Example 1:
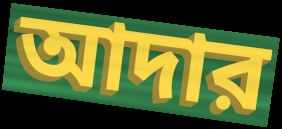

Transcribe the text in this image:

আদার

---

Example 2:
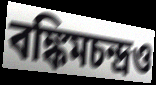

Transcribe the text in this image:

বঙ্কিমচন্দ্রও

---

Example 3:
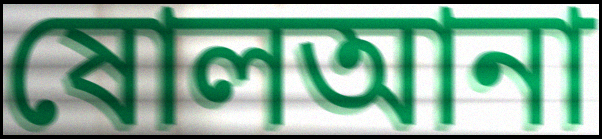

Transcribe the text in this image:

ষোলআনা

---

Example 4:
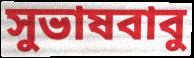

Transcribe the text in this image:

সুভাষবাবু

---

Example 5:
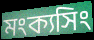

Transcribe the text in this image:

মংক্যসিং